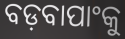
ବଡ଼ବାପାଂକୁ